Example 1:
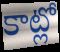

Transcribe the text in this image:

కాట్లో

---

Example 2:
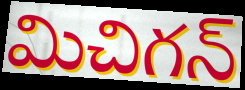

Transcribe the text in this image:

మిచిగన్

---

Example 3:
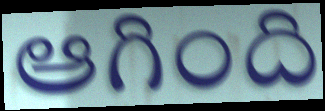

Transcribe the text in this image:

ఆగింది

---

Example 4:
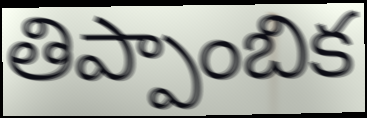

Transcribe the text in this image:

తిప్పాంబిక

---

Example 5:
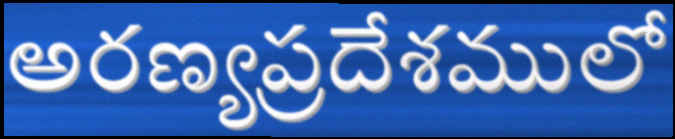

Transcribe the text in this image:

అరణ్యప్రదేశములో